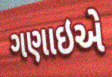
ગણાઇએ